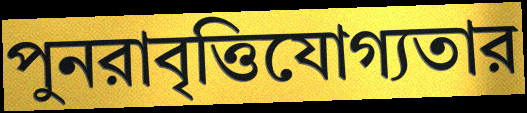
পুনরাবৃত্তিযোগ্যতার